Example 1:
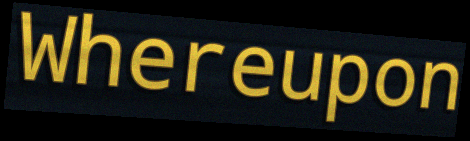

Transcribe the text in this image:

Whereupon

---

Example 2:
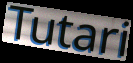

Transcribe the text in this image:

Tutari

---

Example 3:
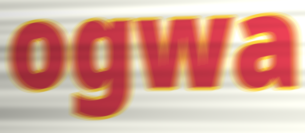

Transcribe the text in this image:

ogwa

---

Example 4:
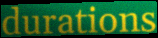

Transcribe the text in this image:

durations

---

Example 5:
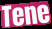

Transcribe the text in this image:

Tene